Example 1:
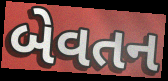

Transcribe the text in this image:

બેવતન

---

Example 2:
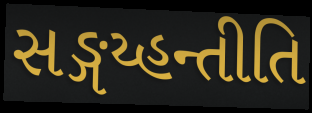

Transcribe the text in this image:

સઙ્ગય્હન્તીતિ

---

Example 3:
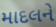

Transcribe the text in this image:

માદલને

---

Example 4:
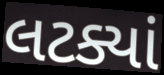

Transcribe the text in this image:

લટક્યાં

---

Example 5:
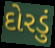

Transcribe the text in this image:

દોરડું